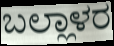
ಬಲ್ಲಾಳರ